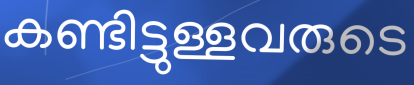
കണ്ടിട്ടുള്ളവരുടെ